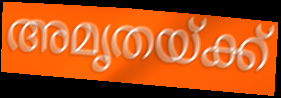
അമൃതയ്ക്ക്